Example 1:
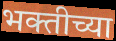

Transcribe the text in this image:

भक्‍तीच्या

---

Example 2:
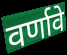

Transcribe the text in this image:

वर्णावे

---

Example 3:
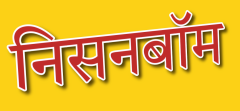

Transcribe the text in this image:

निसनबॉम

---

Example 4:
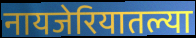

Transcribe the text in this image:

नायजेरियातल्या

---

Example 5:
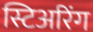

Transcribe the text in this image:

स्टिअरिंग